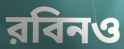
রবিনও